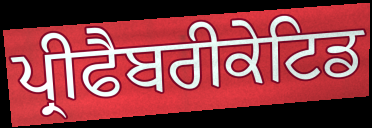
ਪ੍ਰੀਫੈਬਰੀਕੇਟਿਡ